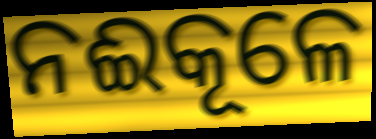
ନଈକୂଳେ